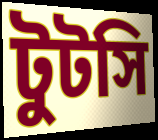
টুটসি